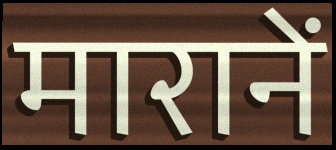
मारानें